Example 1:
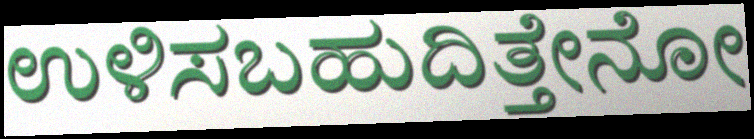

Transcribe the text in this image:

ಉಳಿಸಬಹುದಿತ್ತೇನೋ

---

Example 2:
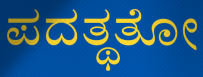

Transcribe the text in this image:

ಪದತ್ಥತೋ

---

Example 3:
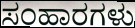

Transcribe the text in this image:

ಸಂಹಾರಗಳು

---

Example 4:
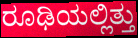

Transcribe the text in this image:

ರೂಢಿಯಲ್ಲಿತ್ತು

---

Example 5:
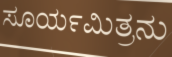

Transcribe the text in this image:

ಸೂರ್ಯಮಿತ್ರನು